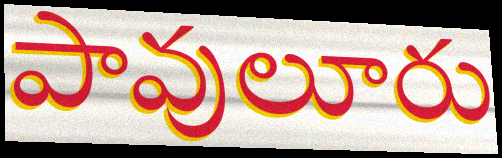
పావులూరు